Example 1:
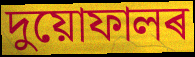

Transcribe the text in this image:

দুয়োফালৰ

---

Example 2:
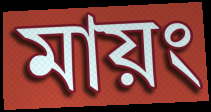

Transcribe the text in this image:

মায়ং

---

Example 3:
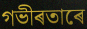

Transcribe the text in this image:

গভীৰতাৰে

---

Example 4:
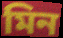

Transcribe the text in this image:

মিন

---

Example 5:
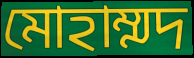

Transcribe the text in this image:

মোহাম্মদ